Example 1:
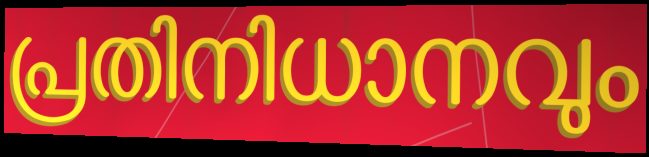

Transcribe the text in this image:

പ്രതിനിധാനവും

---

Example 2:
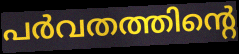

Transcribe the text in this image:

പർവതത്തിന്റെ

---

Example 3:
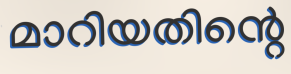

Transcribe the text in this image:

മാറിയതിന്റെ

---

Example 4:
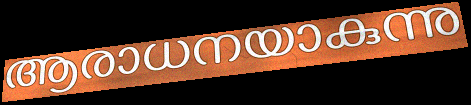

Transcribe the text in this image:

ആരാധനയാകുന്നു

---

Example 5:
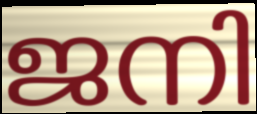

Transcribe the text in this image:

ജനി